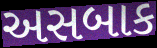
અસબાક